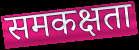
समकक्षता